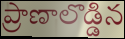
ప్రాణాలొడ్డిన